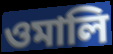
ওমালি